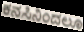
ಕನಸಿನಿಂದಲೂ